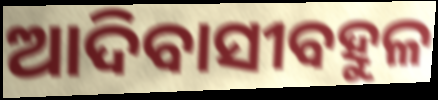
ଆଦିବାସୀବହୁଳ